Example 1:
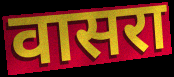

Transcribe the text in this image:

वासरा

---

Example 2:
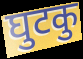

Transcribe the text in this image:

घुटकु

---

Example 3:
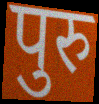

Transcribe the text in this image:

पुरु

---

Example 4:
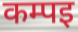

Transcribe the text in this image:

कम्पइ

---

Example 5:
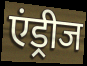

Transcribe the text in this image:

एंड्रीज